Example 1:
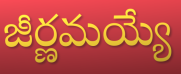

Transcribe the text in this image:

జీర్ణమయ్యే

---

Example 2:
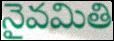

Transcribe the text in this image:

నైవమితి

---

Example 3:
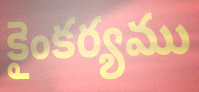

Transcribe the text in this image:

కైంకర్యము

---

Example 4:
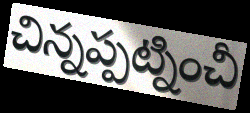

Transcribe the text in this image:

చిన్నప్పట్నించీ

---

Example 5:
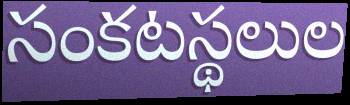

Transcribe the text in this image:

సంకటస్థలుల